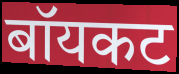
बॉयकट